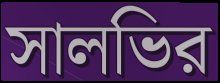
সালভির